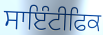
ਸਾਇੰਟੀਫਿਕ